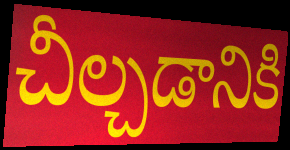
చీల్చడానికి